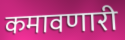
कमावणारी